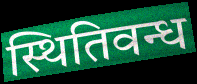
स्थितिवन्ध